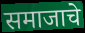
समाजाचे